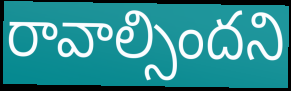
రావాల్సిందని